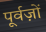
पूर्वज़ों